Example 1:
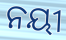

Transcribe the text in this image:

ନୟୀ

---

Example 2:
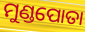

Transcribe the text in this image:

ମୁଣ୍ଡପୋତା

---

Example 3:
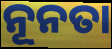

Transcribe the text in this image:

ନୂନତା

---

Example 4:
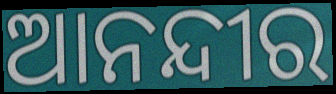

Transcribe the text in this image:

ଆନନ୍ଦୀର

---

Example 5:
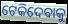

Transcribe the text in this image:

ଟେକିଦେବାକୁ